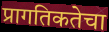
प्रागतिकतेचा